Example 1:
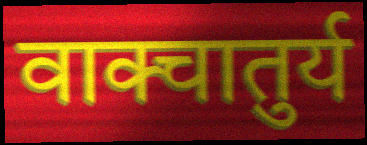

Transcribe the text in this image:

वाक्चातुर्य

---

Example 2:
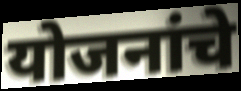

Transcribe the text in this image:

योजनांचे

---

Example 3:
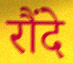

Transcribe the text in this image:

रौंदे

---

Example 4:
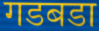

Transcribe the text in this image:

गडबडा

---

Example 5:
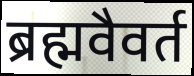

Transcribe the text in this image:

ब्रह्मवैवर्त